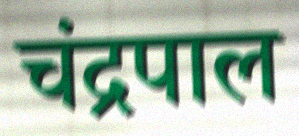
चंद्रपाल